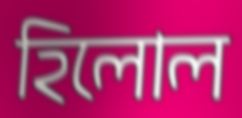
হিলোল